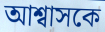
আশ্বাসকে